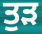
ਤੁੜ